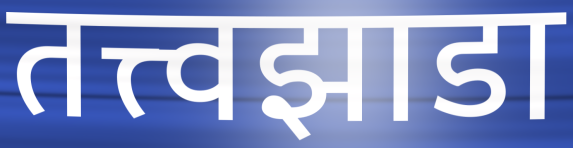
तत्त्वझाडा